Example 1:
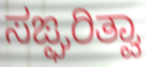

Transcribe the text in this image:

ಸಙ್ಘರಿತ್ವಾ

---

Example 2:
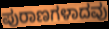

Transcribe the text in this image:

ಪುರಾಣಗಳಾದವು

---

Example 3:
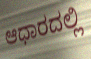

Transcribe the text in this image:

ಆಧಾರದಲ್ಲಿ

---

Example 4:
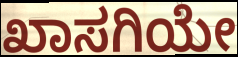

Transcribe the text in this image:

ಖಾಸಗಿಯೇ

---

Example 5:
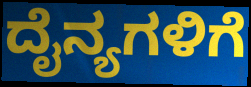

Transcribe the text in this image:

ದೈನ್ಯಗಳಿಗೆ